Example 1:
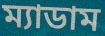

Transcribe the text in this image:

ম্যাডাম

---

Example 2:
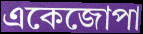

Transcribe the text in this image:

একেজোপা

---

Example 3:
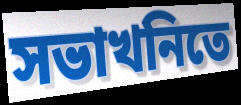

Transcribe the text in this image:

সভাখনিতে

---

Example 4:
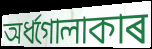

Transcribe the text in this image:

অৰ্ধগোলাকাৰ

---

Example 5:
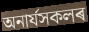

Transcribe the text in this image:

অনাৰ্যসকলৰ